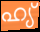
ഹ്യ്